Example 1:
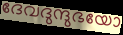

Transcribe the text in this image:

ദേവദുന്ദുഭയോ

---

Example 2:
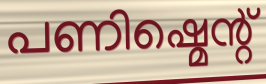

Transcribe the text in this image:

പണിഷ്മെന്റ്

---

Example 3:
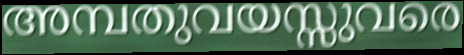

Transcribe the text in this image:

അമ്പതുവയസ്സുവരെ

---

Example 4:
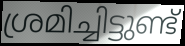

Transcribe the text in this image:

ശ്രമിച്ചിട്ടുണ്ട്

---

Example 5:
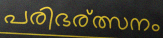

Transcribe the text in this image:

പരിഭര്ത്സനം